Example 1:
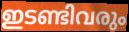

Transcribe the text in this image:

ഇടണ്ടിവരും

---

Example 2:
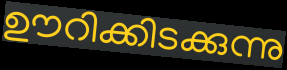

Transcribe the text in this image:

ഊറിക്കിടക്കുന്നു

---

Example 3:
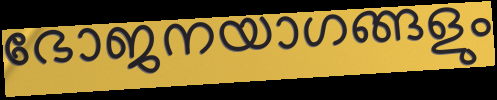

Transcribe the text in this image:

ഭോജനയാഗങ്ങളും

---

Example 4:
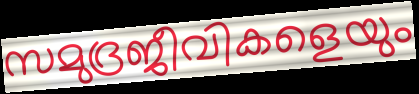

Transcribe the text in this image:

സമുദ്രജീവികളെയും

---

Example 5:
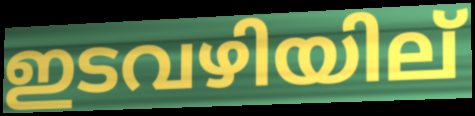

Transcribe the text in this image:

ഇടവഴിയില്